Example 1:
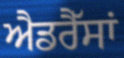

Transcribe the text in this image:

ਐਡਰੈੱਸਾਂ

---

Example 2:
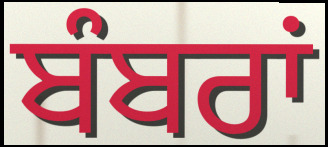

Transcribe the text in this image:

ਬੰਬਰਾਂ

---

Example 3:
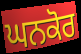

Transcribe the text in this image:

ਘਨਕੋਰ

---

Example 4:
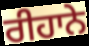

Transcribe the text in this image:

ਰੀਹਾਨੇ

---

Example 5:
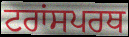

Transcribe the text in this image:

ਟਰਾਂਸਪਰਥ